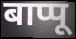
बाप्पू